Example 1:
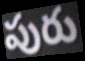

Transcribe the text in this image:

పురు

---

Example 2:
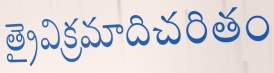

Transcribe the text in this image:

త్రైవిక్రమాదిచరితం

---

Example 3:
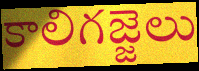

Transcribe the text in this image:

కాలిగజ్జెలు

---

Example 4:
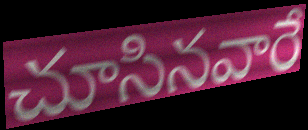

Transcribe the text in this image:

చూసినవారే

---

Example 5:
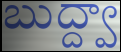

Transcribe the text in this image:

బుద్ద్వా